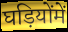
घड़ियोंमें